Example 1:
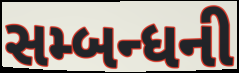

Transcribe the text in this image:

સમ્બન્ધની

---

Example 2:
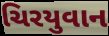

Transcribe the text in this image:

ચિરયુવાન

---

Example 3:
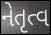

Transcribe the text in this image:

નેતૃત્વ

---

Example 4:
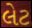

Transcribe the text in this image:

લેટ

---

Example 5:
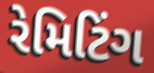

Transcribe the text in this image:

રેમિટિંગ